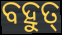
ବହୁତ୍